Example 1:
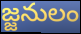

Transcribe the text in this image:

జ్జనులం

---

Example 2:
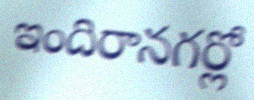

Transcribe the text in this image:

ఇందిరానగర్లో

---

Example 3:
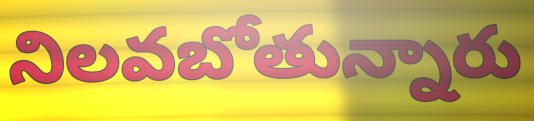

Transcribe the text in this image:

నిలవబోతున్నారు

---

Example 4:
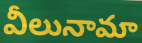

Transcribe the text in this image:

వీలునామా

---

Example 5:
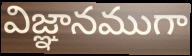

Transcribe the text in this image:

విజ్ఞానముగా